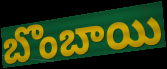
బొంబాయి